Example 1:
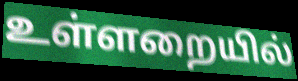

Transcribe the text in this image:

உள்ளறையில்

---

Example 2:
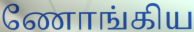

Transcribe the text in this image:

ணோங்கிய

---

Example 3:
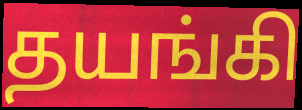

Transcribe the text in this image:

தயங்கி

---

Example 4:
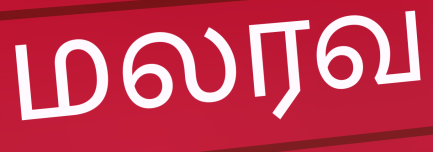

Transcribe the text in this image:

மலரவ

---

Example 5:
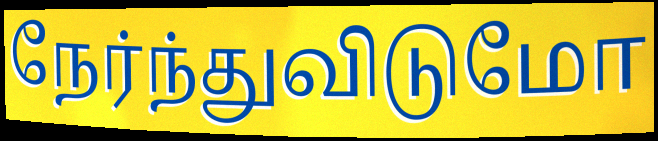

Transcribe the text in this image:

நேர்ந்துவிடுமோ